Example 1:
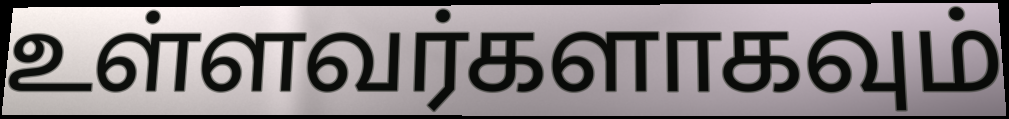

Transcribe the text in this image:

உள்ளவர்களாகவும்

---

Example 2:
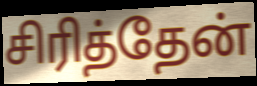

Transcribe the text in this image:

சிரித்தேன்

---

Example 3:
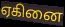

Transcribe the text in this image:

ஏகினை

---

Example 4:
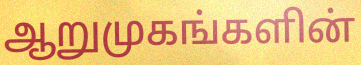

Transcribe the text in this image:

ஆறுமுகங்களின்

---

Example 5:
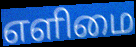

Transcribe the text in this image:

எளிமை